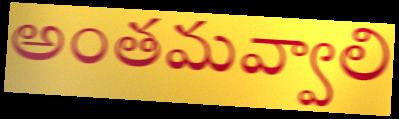
అంతమవ్వాలి